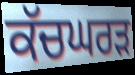
ਕੱਚਘਰੜ